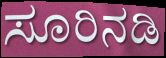
ಸೂರಿನಡಿ